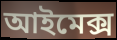
আইমেক্স